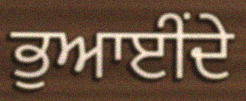
ਭੁਆਈਂਦੇ